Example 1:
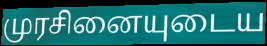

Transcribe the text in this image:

முரசினையுடைய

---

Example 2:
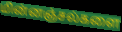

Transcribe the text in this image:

மின்னஞ்சல்களை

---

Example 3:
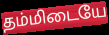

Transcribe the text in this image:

தம்மிடையே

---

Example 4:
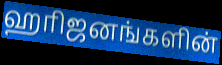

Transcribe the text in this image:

ஹரிஜனங்களின்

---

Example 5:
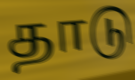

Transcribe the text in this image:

தாடு